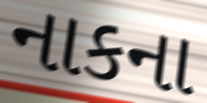
નાકના